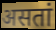
असतां